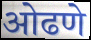
ओढणे